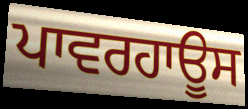
ਪਾਵਰਹਾਊਸ